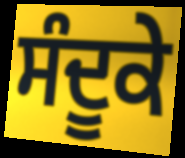
ਸੰਦੂਕੇ